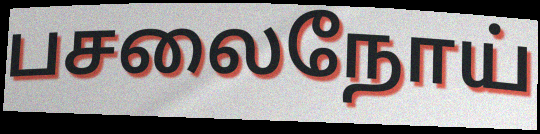
பசலைநோய்